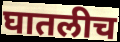
घातलीच